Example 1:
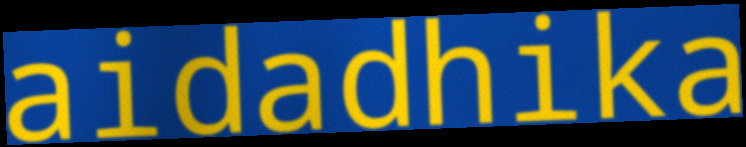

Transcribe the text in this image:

aidadhika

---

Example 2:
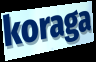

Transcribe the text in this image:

koraga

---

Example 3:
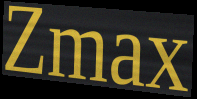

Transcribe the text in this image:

Zmax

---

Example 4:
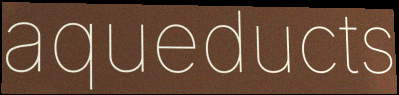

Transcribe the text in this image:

aqueducts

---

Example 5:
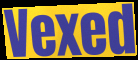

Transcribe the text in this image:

Vexed